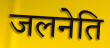
जलनेति